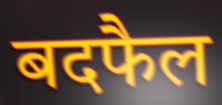
बदफैल